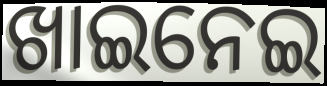
ଖାଇନେଇ